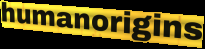
humanorigins